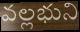
వల్లభుని